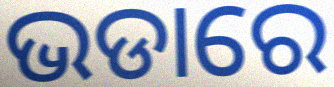
ଭଡାରେ